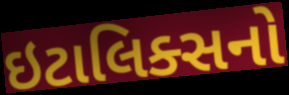
ઇટાલિક્સનો